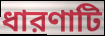
ধারণাটি